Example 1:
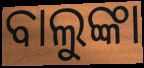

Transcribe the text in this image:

ବାଲୁଙ୍କା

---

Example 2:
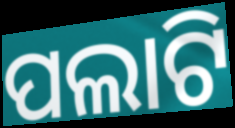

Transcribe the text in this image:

ପଲାଟି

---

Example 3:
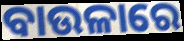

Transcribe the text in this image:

ବାଉଳାରେ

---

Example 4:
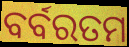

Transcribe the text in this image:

ବର୍ବରତମ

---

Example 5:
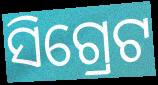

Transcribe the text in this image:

ସିଗ୍ରେଟ